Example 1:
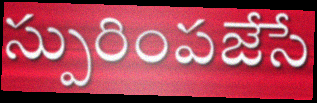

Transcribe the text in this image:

స్పురింపజేసే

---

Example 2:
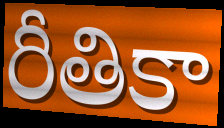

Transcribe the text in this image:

రీతికా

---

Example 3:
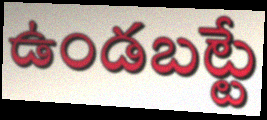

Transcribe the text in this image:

ఉండబట్టే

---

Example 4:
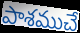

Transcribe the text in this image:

పాశముచే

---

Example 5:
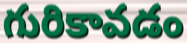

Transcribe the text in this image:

గురికావడం